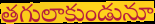
తగులాకుండునూ